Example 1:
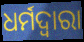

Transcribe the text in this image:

ଧର୍ମଦ୍ଵାରା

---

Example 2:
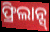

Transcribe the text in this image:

ଫ୍ରିଲାନ୍ସ୍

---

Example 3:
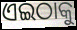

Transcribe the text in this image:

ଏଇଠାକୁ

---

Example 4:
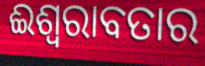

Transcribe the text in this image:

ଈଶ୍ୱରାବତାର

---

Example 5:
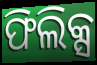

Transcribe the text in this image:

ଫିଲିକ୍ସ